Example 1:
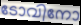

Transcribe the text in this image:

ടോവിനോ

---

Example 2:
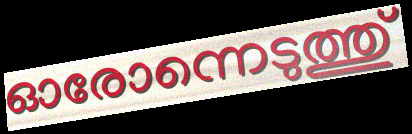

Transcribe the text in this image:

ഓരോന്നെടുത്തു്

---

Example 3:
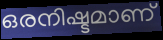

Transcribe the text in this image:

ഒരനിഷ്ടമാണ്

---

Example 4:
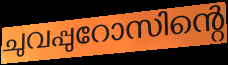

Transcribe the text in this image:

ചുവപ്പുറോസിന്റെ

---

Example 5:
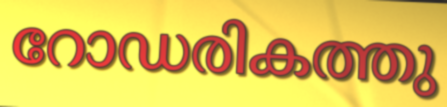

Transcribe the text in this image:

റോഡരികത്തു